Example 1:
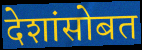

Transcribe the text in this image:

देशांसोबत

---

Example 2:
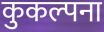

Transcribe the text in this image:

कुकल्पना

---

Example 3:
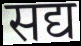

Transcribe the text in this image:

सद्य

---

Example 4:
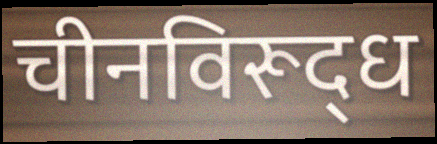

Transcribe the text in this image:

चीनविरूद्ध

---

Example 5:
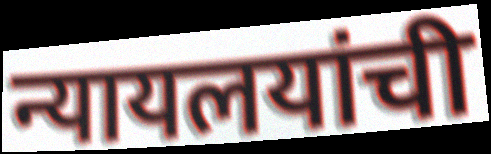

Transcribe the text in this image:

न्यायलयांची